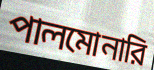
পালমোনারি